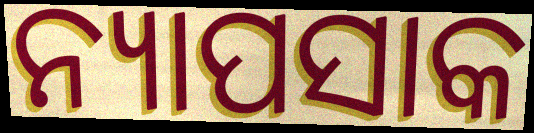
ନ୍ୟାପସାକ